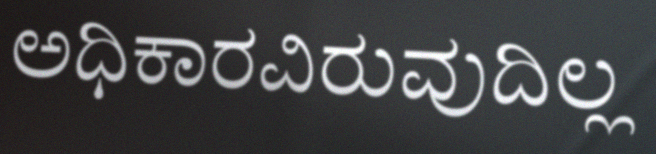
ಅಧಿಕಾರವಿರುವುದಿಲ್ಲ